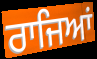
ਰਾਜਿਆਂ